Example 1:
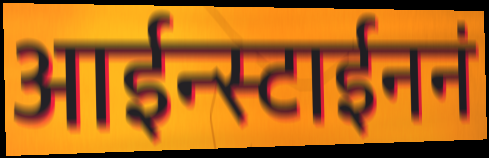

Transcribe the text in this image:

आईन्स्टाईननं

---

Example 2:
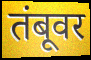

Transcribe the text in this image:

तंबूवर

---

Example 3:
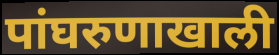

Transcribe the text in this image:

पांघरुणाखाली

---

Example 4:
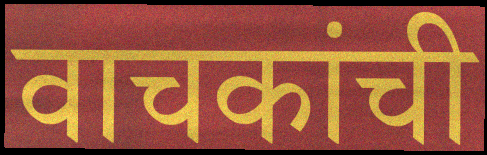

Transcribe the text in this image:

वाचकांची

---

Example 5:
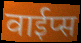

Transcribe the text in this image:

वाईप्स